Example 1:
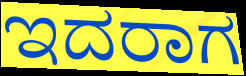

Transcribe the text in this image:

ಇದರಾಗ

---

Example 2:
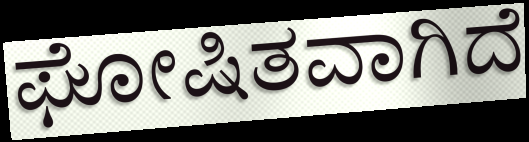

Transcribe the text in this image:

ಘೋಷಿತವಾಗಿದೆ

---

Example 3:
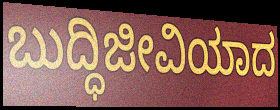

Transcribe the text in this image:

ಬುದ್ಧಿಜೀವಿಯಾದ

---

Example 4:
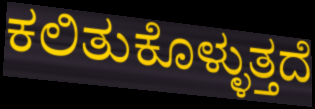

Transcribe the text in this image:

ಕಲಿತುಕೊಳ್ಳುತ್ತದೆ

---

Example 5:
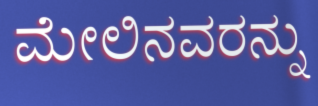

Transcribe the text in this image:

ಮೇಲಿನವರನ್ನು